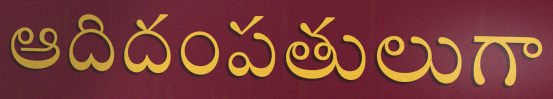
ఆదిదంపతులుగా